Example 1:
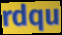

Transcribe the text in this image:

rdqu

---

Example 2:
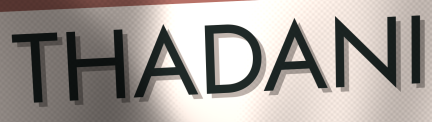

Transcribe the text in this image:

THADANI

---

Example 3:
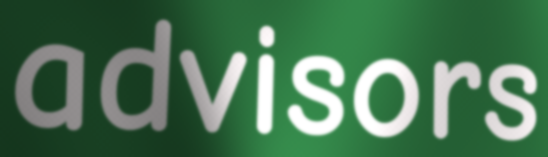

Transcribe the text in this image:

advisors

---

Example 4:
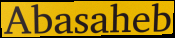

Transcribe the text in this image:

Abasaheb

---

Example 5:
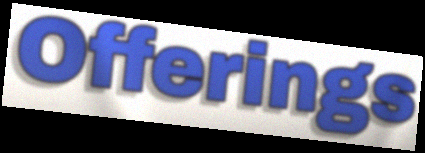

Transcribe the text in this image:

Offerings